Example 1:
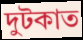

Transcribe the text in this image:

দুটকাত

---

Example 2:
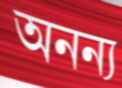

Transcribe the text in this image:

অনন্য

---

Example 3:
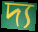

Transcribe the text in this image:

দ্য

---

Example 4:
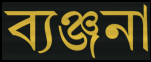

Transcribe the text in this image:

ব্যঞ্জনা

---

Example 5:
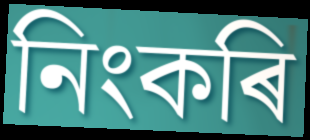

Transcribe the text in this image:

নিংকৰি